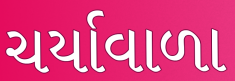
ચર્યાવાળા